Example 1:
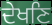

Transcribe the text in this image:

ਦੇਖਣਿ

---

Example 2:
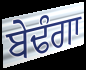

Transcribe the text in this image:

ਬੇਢੰਗਾ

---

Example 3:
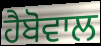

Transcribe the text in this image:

ਹੈਬੋਵਾਲ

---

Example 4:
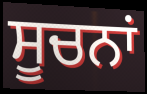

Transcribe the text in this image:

ਸੂਚਨਾਂ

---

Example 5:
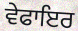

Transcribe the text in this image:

ਵੇਫਾਇਰ